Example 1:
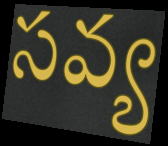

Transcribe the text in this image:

సవ్య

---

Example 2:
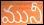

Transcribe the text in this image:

మునీ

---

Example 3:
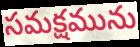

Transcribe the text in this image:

సమక్షమును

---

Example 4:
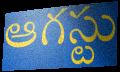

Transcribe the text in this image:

ఆగస్టు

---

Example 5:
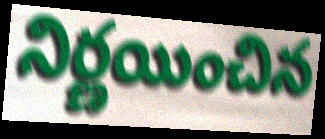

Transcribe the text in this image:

నిర్ణయించిన